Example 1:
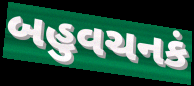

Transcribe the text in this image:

બહુવચનકં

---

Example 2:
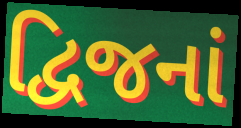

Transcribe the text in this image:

દ્વિજનાં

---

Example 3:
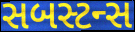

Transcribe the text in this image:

સબસ્ટન્સ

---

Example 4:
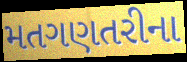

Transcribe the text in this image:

મતગણતરીના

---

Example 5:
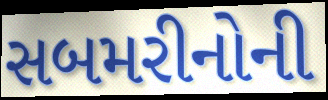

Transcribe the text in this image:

સબમરીનોની